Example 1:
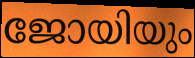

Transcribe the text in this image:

ജോയിയും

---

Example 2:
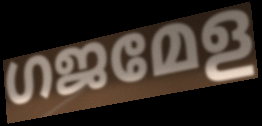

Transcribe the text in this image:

ഗജമേള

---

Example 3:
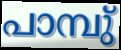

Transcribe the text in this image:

പാമ്പു്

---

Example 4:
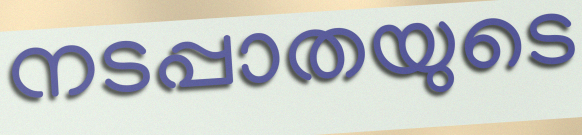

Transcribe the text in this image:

നടപ്പാതയുടെ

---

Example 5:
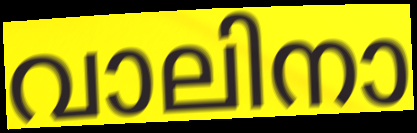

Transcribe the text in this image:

വാലിനാ